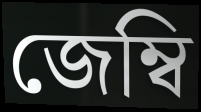
জেম্বি